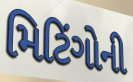
મિટિંગોની